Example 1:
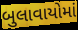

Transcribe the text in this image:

બુલાવાયોમાં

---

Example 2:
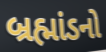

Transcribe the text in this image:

બ્રહ્માંડનો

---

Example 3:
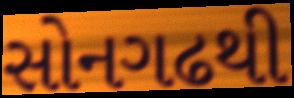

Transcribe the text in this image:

સોનગઢથી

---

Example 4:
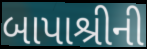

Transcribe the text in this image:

બાપાશ્રીની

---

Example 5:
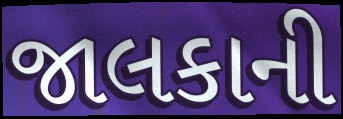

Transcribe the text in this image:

જાલકાની